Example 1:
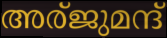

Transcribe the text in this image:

അര്ജുമന്ദ്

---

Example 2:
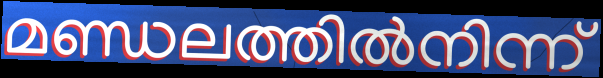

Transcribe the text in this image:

മണ്ഡലത്തിൽനിന്ന്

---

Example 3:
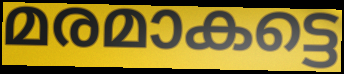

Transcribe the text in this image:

മരമാകട്ടെ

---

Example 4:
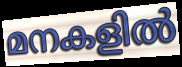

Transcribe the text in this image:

മനകളിൽ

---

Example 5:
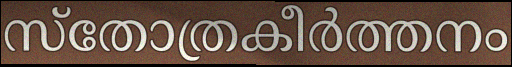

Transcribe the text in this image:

സ്തോത്രകീർത്തനം